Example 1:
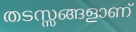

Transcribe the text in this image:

തടസ്സങ്ങളാണ്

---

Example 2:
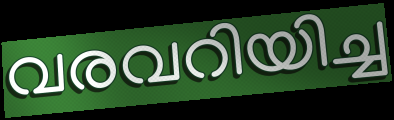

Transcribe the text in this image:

വരവറിയിച്ച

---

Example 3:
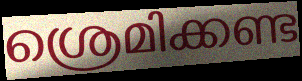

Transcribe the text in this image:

ശ്രെമിക്കണ്ട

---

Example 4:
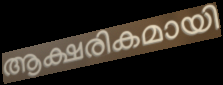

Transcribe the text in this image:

ആക്ഷരികമായി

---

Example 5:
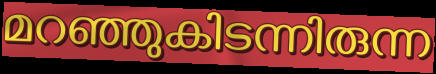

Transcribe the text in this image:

മറഞ്ഞുകിടന്നിരുന്ന